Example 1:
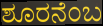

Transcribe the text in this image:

ಶೂರನೆಂಬ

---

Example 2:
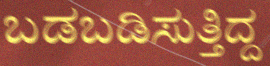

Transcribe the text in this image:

ಬಡಬಡಿಸುತ್ತಿದ್ದ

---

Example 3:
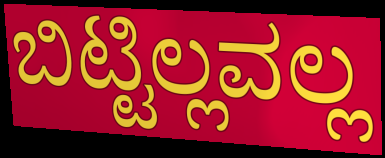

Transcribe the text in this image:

ಬಿಟ್ಟಿಲ್ಲವಲ್ಲ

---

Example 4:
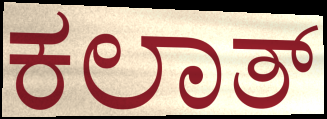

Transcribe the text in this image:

ಕಲಾತ್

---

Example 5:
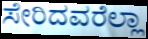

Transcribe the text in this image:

ಸೇರಿದವರೆಲ್ಲಾ